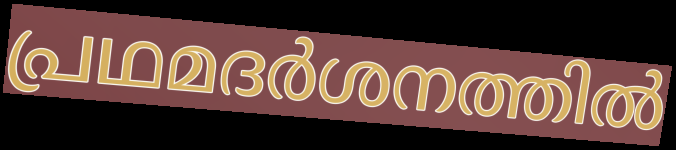
പ്രഥമദർശനത്തിൽ